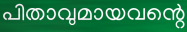
പിതാവുമായവന്റെ